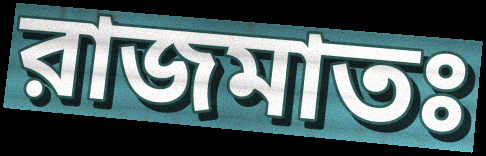
রাজমাতঃ